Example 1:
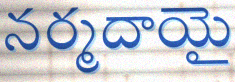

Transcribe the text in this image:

నర్మదాయై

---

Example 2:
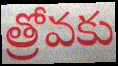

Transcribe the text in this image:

త్రోవకు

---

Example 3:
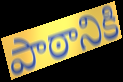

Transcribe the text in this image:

పాఠానికి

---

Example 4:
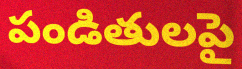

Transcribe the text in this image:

పండితులపై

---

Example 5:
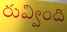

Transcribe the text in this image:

రువ్వింది